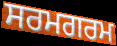
ਸਰਮਗਰਮ